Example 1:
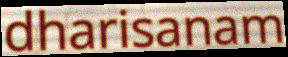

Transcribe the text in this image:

dharisanam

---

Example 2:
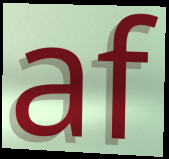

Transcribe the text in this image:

af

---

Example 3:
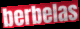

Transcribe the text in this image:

berbelas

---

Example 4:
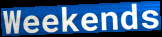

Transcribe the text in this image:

Weekends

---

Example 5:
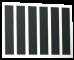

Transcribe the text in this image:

IIIIII